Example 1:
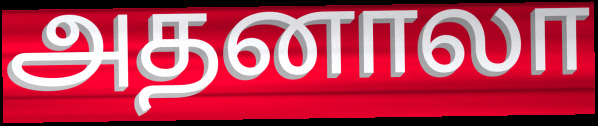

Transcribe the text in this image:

அதனாலா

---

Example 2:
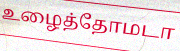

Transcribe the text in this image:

உழைத்தோமடா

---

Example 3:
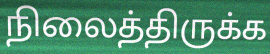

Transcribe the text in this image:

நிலைத்திருக்க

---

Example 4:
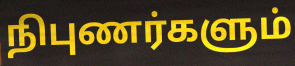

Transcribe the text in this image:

நிபுணர்களும்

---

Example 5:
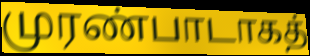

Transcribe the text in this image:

முரண்பாடாகத்